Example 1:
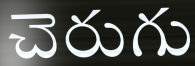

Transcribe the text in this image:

చెరుగు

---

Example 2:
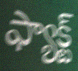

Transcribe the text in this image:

ఫ్యాక్ట్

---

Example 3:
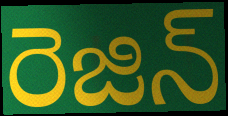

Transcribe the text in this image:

రెజిన్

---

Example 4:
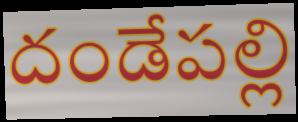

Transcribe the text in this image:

దండేపల్లి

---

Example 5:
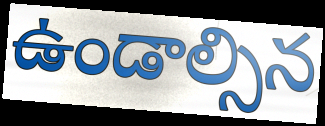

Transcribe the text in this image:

ఉండాల్సిన